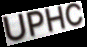
UPHC